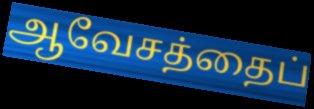
ஆவேசத்தைப்